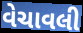
વેચાવલી